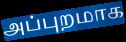
அப்புறமாக